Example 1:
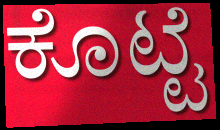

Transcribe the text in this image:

ಕೊಟ್ಟೆ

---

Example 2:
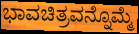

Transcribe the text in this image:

ಭಾವಚಿತ್ರವನ್ನೊಮ್ಮೆ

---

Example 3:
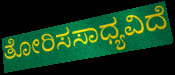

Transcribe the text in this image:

ತೋರಿಸಸಾಧ್ಯವಿದೆ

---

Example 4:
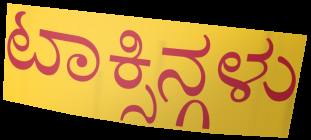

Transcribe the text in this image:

ಟಾಕ್ಸಿನ್ಗಳು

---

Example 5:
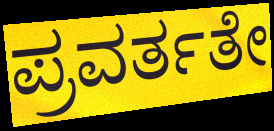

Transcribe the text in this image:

ಪ್ರವರ್ತತೇ